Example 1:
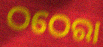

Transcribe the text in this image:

ଠଠେରା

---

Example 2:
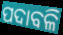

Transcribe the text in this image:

ପଦାବଳି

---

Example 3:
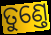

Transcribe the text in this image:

ତୁଣ୍ତେ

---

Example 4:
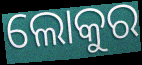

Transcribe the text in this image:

ଲୋକୁର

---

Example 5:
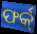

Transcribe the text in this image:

ଫର୍କ୍